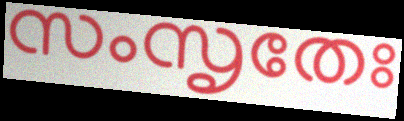
സംസൃതേഃ